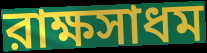
রাক্ষসাধম